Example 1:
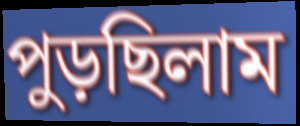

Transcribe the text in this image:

পুড়ছিলাম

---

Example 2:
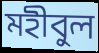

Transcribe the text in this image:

মহীবুল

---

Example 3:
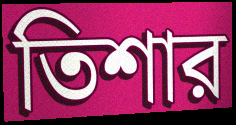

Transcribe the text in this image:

তিশার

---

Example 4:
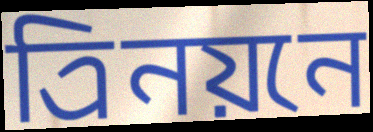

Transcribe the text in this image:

ত্রিনয়নে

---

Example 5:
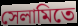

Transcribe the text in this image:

সেলামিতে